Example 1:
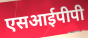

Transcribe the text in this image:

एसआईपीपी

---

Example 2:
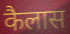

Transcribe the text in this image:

कैलास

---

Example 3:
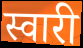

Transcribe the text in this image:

स्वारी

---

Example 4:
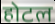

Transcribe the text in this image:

होटल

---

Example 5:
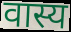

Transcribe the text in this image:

वास्य